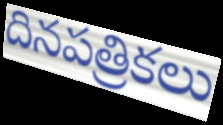
దినపత్రికలు